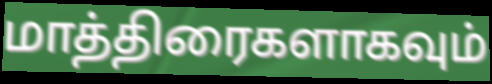
மாத்திரைகளாகவும்